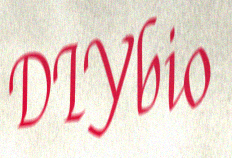
DIYbio